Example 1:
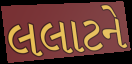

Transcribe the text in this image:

લલાટને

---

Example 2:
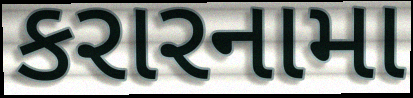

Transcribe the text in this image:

કરારનામા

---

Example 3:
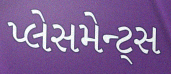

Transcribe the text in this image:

પ્લેસમેન્ટ્સ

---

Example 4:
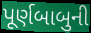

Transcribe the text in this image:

પૂર્ણબાબુની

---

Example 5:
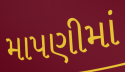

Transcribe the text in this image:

માપણીમાં